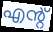
എന്റ്